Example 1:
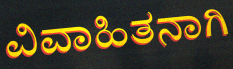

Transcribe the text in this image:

ವಿವಾಹಿತನಾಗಿ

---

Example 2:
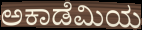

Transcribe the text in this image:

ಅಕಾಡೆಮಿಯ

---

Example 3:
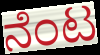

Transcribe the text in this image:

ನೆಂಟ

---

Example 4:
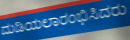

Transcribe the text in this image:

ದುಡಿಯಲಾರಂಭಿಸಿದರು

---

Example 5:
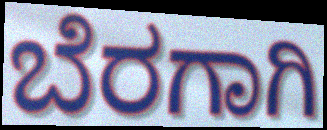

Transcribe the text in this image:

ಬೆರಗಾಗಿ